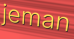
jeman